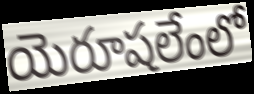
యెరూషలేంలో